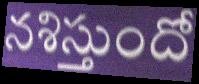
నశిస్తుందో